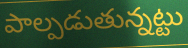
పాల్పడుతున్నట్టు